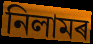
নিলামৰ